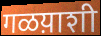
गळय़ाशी